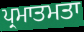
ਪ੍ਰਮਾਤਮਤਾ